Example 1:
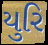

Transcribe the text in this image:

યુરિ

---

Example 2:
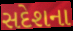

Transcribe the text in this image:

સદેશના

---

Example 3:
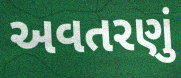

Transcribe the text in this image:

અવતરણું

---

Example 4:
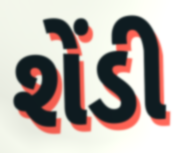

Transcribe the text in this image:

શેંડી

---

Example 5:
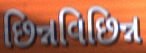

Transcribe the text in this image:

છિન્નવિછિન્ન